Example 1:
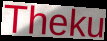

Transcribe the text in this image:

Theku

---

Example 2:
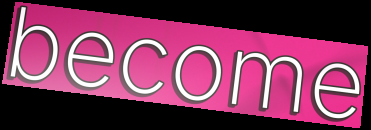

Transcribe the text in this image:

become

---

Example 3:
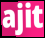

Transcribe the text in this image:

ajit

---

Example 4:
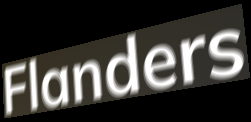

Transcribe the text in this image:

Flanders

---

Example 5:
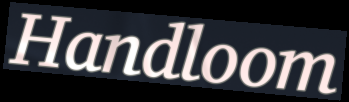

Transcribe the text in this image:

Handloom